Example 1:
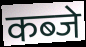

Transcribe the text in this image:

कब्‍जे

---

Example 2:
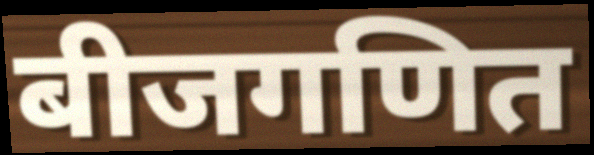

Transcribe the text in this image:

बीजगणित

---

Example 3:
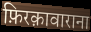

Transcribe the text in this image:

फ़िरक़ावाराना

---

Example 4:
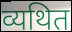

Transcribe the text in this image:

व्यथित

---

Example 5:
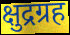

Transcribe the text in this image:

क्षुद्रग्रह